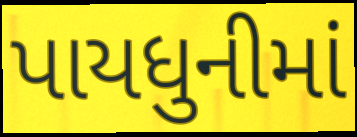
પાયધુનીમાં